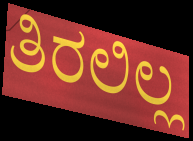
ತಿರಲಿಲ್ಲ